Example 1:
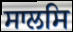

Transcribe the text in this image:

ਸਾਲਸਿ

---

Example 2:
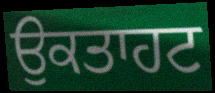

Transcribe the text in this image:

ਉਕਤਾਹਟ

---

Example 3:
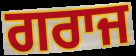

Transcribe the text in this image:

ਗਰਾਜ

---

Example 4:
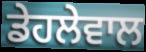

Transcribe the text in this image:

ਡੇਹਲੇਵਾਲ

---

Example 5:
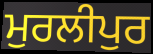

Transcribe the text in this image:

ਮੁਰਲੀਪੁਰ